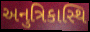
અનુત્રિકાસ્થિ